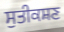
ਸੁਤੀਕਸ਼ਣ